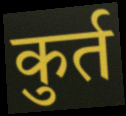
कुर्त